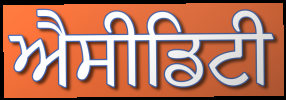
ਐਸੀਡਿਟੀ